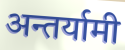
अन्‍तर्यामी